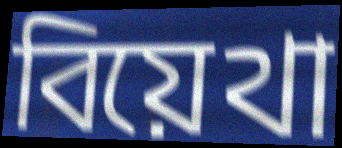
বিয়েথা